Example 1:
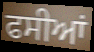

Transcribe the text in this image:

ਫਸੀਆਂ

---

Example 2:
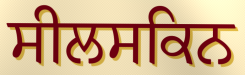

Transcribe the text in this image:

ਸੀਲਸਕਿਨ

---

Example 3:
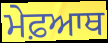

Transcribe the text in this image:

ਮੇਫ਼ਆਥ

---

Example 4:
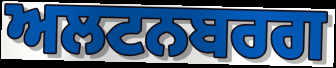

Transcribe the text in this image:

ਅਲਟਨਬਰਗ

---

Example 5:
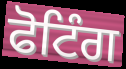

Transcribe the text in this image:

ਫੋਟਿੰਗ